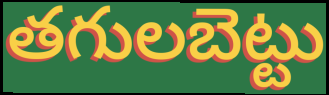
తగులబెట్టు